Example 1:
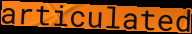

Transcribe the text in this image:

articulated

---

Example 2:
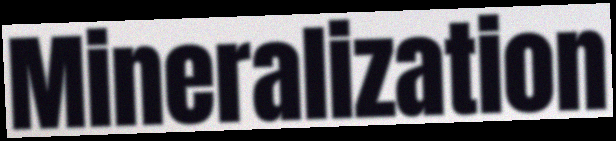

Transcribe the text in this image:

Mineralization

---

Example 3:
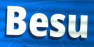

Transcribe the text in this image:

Besu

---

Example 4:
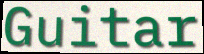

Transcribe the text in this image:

Guitar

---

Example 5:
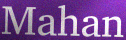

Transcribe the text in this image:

Mahan